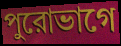
পুরোভাগে